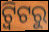
ଟ୍ବିଟରୁ